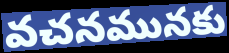
వచనమునకు